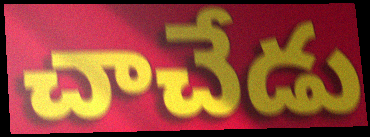
చాచేడు